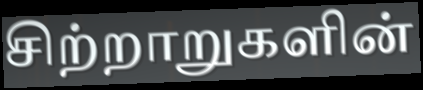
சிற்றாறுகளின்